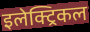
इलेक्ट्रिकल